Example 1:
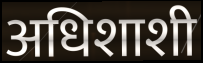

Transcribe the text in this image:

अधिशाशी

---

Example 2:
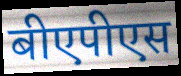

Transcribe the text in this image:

बीएपीएस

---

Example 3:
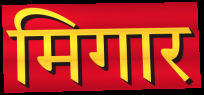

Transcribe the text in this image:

मिगार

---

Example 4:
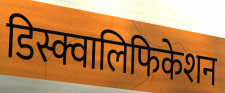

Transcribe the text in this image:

डिस्क्वालिफिकेशन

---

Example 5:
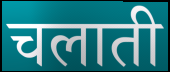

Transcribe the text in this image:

चलाती